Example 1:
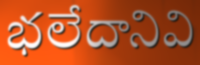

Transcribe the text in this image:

భలేదానివి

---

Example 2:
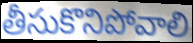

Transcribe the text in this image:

తీసుకొనిపోవాలి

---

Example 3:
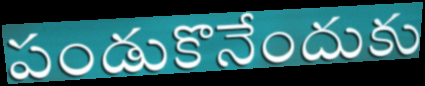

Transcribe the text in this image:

పండుకొనేందుకు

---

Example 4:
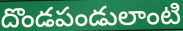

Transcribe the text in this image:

దొండపండులాంటి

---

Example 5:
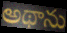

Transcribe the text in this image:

అథాను